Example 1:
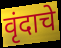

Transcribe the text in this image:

वृंदाचे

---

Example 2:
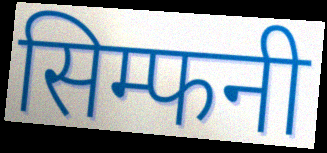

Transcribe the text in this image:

सिम्फनी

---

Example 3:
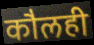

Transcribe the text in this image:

कौलही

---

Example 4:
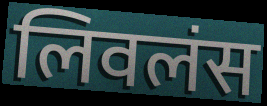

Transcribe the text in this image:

लिवलंस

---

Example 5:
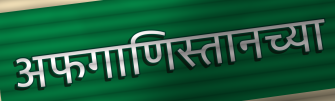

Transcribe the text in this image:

अफगाणिस्तानच्या